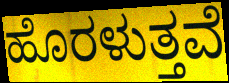
ಹೊರಳುತ್ತವೆ